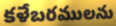
కళేబరములను